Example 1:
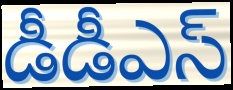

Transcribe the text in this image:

డీడీఎస్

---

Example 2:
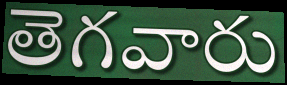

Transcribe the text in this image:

తెగవారు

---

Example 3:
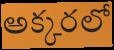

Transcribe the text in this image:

అక్కరలో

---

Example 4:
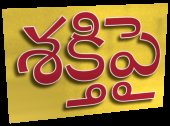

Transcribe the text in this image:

శక్తిపై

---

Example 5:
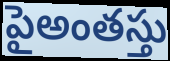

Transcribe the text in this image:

పైఅంతస్తు